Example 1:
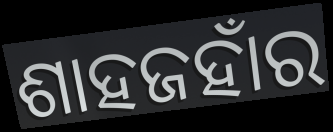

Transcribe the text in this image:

ଶାହଜହାଁର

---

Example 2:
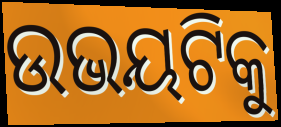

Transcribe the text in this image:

ଉଭୟଟିକୁ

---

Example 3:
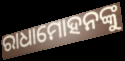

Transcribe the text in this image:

ରାଧାମୋହନଙ୍କୁ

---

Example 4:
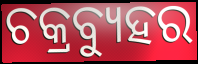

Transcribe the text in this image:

ଚକ୍ରବ୍ୟୁହର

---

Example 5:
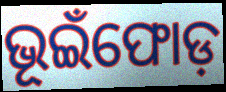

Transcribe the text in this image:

ଭୂଇଁଫୋଡ଼